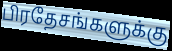
பிரதேசங்களுக்கு